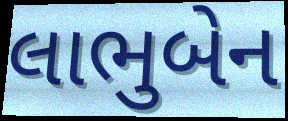
લાભુબેન